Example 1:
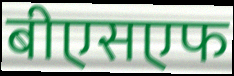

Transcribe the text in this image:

बीएसएफ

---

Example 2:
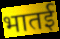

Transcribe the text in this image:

भातई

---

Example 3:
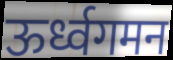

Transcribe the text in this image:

ऊर्ध्वगमन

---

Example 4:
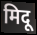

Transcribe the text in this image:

मिदू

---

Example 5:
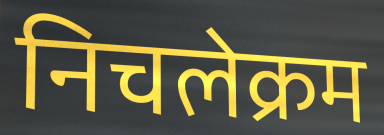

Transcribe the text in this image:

निचलेक्रम